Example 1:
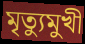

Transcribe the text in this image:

মৃত্যুমুখী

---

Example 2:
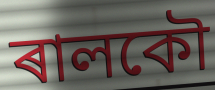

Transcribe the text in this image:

ৰালকৌ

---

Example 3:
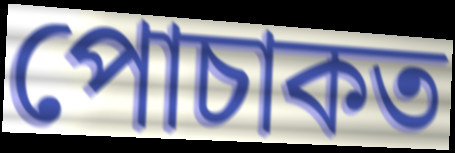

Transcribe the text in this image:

পোচাকত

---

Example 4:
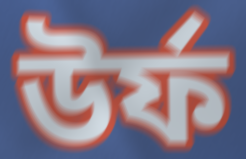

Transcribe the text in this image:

উৰ্ফ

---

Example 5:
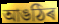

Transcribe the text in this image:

আঙঠিৰ